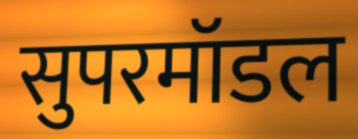
सुपरमॉडल